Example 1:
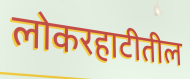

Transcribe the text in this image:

लोकरहाटीतील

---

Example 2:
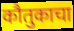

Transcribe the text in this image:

कौतुकाचा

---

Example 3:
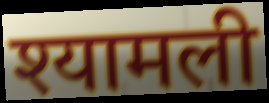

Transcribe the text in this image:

श्यामली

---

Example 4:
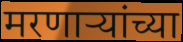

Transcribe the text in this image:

मरणाऱ्यांच्या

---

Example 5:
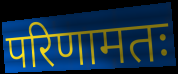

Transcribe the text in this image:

परिणामतः